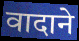
वादाने